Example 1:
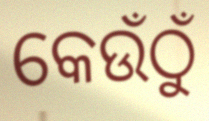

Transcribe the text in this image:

କେଉଁଠୁଁ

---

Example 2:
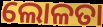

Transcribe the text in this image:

ଲୋଳତା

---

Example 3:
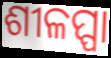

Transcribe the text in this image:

ଶୀଳପ୍ପା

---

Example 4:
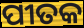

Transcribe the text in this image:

ପୀତକ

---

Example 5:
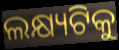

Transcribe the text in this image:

ଲକ୍ଷ୍ୟଟିକୁ